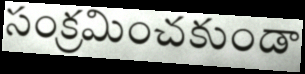
సంక్రమించకుండా